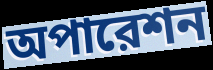
অপারেশন